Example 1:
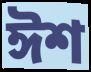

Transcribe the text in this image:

ঈশ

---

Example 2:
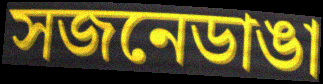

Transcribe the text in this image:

সজনেডাঙা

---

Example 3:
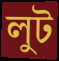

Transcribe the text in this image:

লুট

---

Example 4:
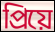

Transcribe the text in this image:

প্রিয়ে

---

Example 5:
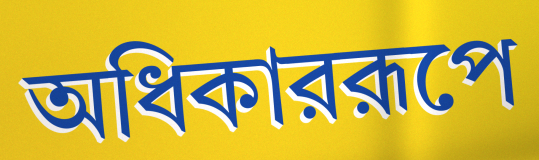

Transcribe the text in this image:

অধিকাররূপে